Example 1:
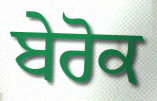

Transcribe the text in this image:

ਬੇਰੋਕ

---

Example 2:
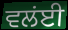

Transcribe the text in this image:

ਵਲਂਈ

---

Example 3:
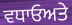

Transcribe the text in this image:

ਵਧਾਓਅਤੇ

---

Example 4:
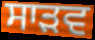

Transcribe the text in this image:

ਸਾੜਵ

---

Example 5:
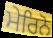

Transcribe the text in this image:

ਮੇਰਿਨੋ